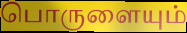
பொருளையும்